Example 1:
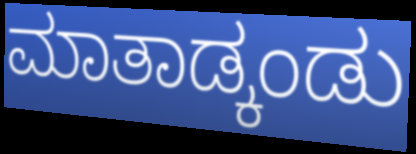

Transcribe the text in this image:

ಮಾತಾಡ್ಕಂಡು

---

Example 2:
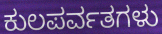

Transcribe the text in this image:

ಕುಲಪರ್ವತಗಳು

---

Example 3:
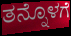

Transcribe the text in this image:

ತನ್ನೊಳಗೆ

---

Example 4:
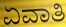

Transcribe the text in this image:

ಏವಾತಿ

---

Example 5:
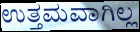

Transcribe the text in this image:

ಉತ್ತಮವಾಗಿಲ್ಲ